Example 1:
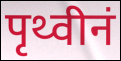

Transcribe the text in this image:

पृथ्वीनं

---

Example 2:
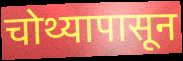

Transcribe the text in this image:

चोथ्यापासून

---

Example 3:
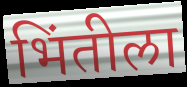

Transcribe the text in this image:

भिंतीला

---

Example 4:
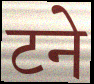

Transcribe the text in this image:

टने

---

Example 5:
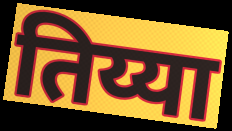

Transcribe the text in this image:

तिय्या